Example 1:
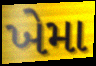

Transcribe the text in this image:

ખેમા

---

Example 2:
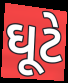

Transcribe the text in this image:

ઘૂટે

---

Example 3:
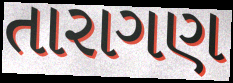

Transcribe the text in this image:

તારાગણ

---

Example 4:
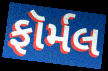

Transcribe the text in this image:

ફૉર્મલ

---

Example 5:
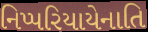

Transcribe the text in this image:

નિપ્પરિયાયેનાતિ